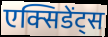
एक्सिडेंट्स